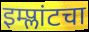
इम्प्लांटचा